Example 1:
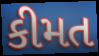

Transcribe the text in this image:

કીમત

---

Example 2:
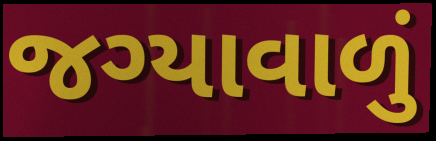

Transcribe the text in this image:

જગ્યાવાળું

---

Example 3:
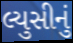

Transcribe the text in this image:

લ્યુસીનું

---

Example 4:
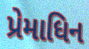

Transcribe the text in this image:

પ્રેમાધિન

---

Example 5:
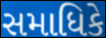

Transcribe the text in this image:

સમાધિકે